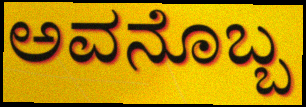
ಅವನೊಬ್ಬ